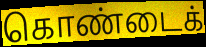
கொண்டைக்